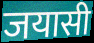
जयासी